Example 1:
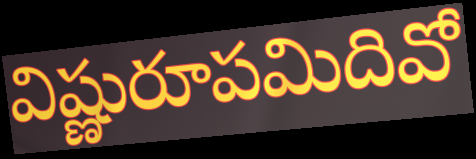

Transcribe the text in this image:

విష్ణురూపమిదివో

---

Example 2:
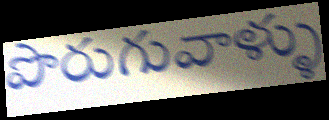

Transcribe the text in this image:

పొరుగువాళ్ళు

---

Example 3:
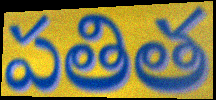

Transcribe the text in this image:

పతిత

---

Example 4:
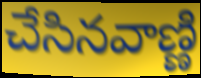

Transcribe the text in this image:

చేసినవాణ్ణి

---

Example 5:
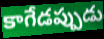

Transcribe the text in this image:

కాగేడప్పుడు